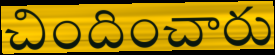
చిందించారు